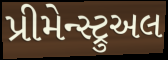
પ્રીમેન્સ્ટ્રુઅલ